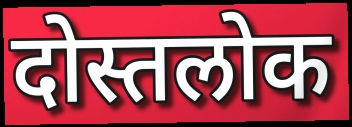
दोस्तलोक